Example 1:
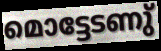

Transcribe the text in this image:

മൊട്ടേടണു്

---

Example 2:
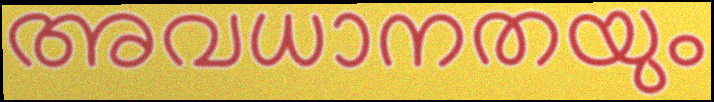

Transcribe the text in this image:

അവധാനതയും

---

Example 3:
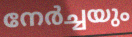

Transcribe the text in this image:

നേർച്ചയും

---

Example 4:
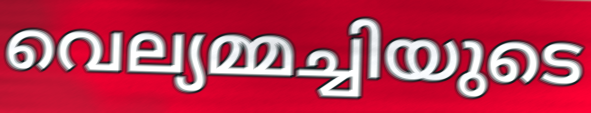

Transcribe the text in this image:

വെല്യമ്മച്ചിയുടെ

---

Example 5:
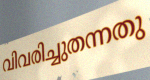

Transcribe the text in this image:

വിവരിച്ചുതന്നതു